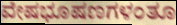
ವೇಷಭೂಷಣಗಳಂತೂ